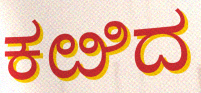
ಕೞಿದ